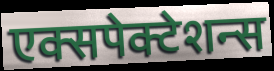
एक्सपेक्टेशन्स